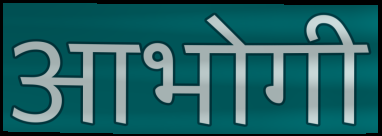
आभोगी